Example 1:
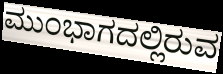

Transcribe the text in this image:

ಮುಂಭಾಗದಲ್ಲಿರುವ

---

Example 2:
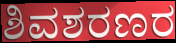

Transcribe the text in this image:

ಶಿವಶರಣರ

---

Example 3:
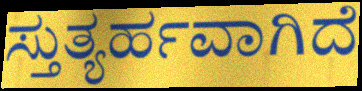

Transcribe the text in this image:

ಸ್ತುತ್ಯರ್ಹವಾಗಿದೆ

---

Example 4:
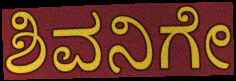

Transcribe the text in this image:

ಶಿವನಿಗೇ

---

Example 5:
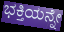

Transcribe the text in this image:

ಭಕ್ತಿಯನ್ನೇ